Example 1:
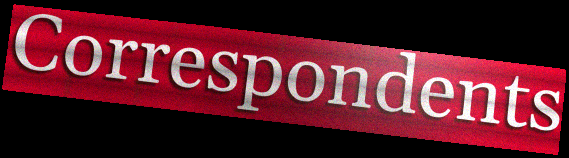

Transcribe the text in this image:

Correspondents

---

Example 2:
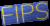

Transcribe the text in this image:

FIPS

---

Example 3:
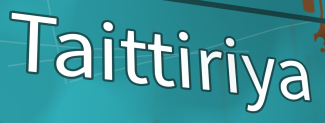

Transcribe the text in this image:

Taittiriya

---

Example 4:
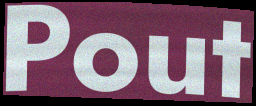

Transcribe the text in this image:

Pout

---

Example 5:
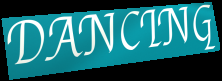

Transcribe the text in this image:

DANCING